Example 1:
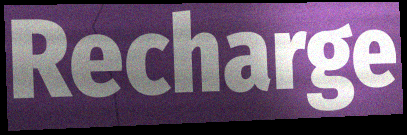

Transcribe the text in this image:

Recharge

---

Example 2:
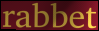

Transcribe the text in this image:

rabbet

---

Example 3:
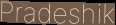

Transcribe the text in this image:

Pradeshik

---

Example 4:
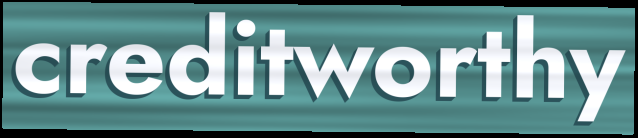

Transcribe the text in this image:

creditworthy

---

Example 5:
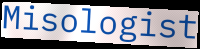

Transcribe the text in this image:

Misologist